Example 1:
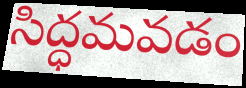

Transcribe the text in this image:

సిద్ధమవడం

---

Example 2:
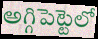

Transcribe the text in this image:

అగ్గిపెట్టెలో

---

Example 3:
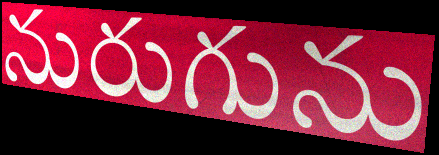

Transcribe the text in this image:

నురుగును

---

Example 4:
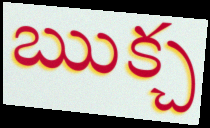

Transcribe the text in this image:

ఋక్చ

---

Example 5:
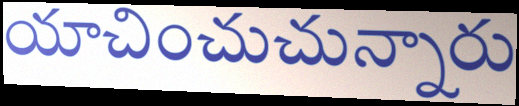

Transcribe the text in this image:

యాచించుచున్నారు